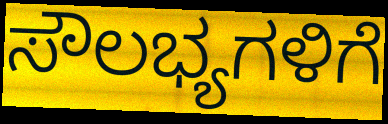
ಸೌಲಭ್ಯಗಳಿಗೆ